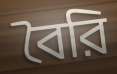
বৈরি